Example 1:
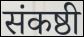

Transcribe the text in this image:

संकष्ठी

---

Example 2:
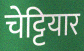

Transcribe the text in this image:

चेट्टियार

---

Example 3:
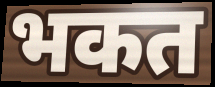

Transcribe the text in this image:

भकत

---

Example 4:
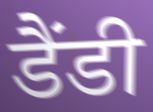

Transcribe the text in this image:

डैंडी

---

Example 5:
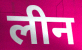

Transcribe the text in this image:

लीन